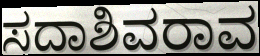
ಸದಾಶಿವರಾವ